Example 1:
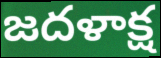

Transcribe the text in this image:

జదళాక్ష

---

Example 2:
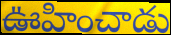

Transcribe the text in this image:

ఊహించాడు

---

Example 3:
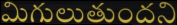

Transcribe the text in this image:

మిగులుతుందని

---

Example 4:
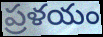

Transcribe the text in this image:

ప్రళయం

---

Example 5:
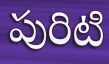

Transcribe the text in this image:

పురిటి